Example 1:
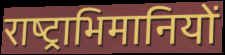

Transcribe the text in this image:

राष्ट्राभिमानियों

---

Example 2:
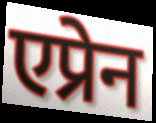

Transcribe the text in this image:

एप्रेन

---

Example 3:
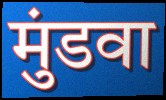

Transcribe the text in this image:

मुंडवा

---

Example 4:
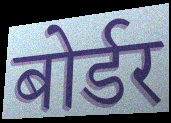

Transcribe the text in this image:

बोर्डर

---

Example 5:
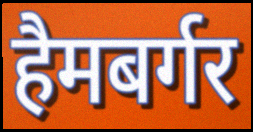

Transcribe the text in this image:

हैमबर्गर